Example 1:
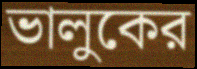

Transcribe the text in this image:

ভালুকের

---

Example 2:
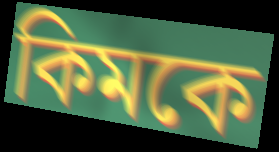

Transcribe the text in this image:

কিমকে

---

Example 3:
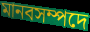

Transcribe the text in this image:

মানবসম্পদে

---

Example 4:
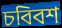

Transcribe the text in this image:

চবিবশ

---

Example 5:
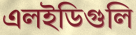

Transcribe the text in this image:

এলইডিগুলি